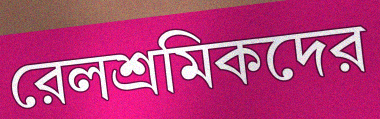
রেলশ্রমিকদের